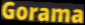
Gorama